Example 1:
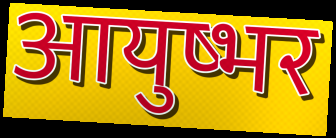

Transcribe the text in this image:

आयुष्भर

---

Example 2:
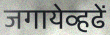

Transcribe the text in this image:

जगायेव्हढें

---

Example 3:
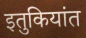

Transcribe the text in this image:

इतुकियांत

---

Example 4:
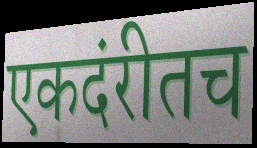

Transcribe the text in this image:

एकदंरीतच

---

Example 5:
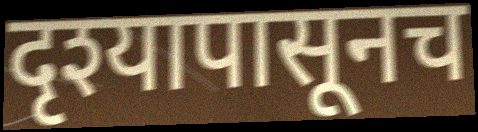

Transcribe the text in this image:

दृश्यापासूनच